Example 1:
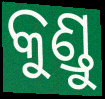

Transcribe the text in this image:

କୁଣ୍ଡୁ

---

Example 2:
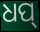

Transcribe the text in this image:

ଧପ୍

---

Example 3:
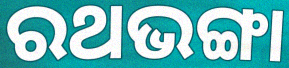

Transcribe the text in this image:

ରଥଭଙ୍ଗା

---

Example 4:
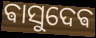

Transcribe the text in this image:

ଵାସୁଦେଵ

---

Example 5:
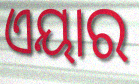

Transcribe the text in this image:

ଏୟାର